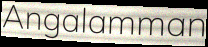
Angalamman